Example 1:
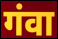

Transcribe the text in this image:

गंवा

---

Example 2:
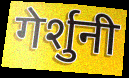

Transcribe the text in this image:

गेर्शुनी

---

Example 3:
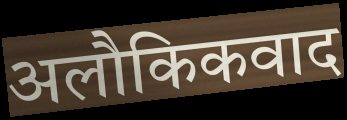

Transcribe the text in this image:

अलौकिकवाद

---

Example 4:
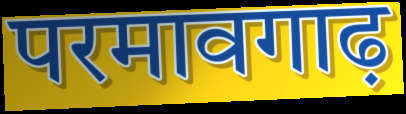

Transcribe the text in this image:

परमावगाढ़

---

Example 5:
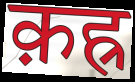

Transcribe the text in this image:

क़ह्र